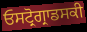
ਓਸਟ੍ਰੋਗ੍ਰਾਡਸਕੀ